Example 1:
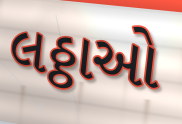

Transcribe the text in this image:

લઠ્ઠાઓ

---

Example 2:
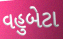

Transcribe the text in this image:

વહુબેટા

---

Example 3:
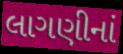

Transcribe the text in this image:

લાગણીનાં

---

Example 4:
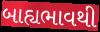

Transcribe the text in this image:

બાહ્યભાવથી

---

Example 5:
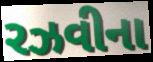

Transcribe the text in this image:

રઝવીના